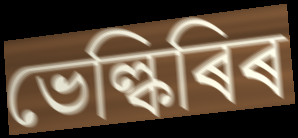
ভেল্কিৰিৰ